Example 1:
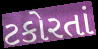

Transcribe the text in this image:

ટકોરતાં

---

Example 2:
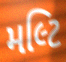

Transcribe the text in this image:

મલ્ટિ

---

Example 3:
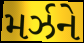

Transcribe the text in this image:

મર્ઝને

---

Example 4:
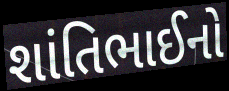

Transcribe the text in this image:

શાંતિભાઈનો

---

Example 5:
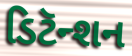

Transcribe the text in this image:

ડિટૅન્શન